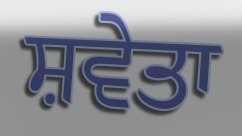
ਸ਼ਵੇਤਾ